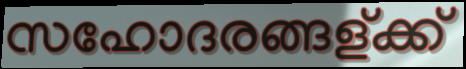
സഹോദരങ്ങള്ക്ക്